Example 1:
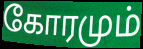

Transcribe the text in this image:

கோரமும்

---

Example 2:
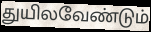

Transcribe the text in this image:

துயிலவேண்டும்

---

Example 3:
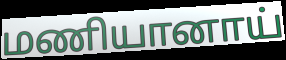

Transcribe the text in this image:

மணியானாய்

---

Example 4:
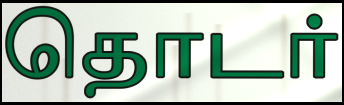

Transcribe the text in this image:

தொடர்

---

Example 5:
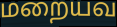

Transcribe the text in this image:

மறையவ